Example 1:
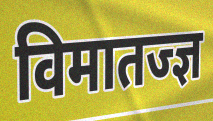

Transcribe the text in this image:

विमातज्ज्ञ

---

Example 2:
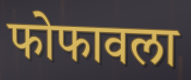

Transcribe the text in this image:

फोफावला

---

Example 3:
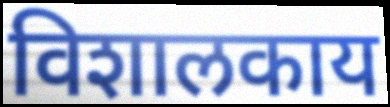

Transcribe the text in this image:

विशालकाय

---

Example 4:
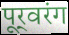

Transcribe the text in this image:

पूर्वरंग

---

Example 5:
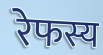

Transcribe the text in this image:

रेफस्य